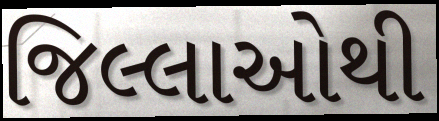
જિલ્લાઓથી